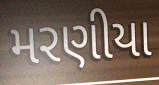
મરણીયા